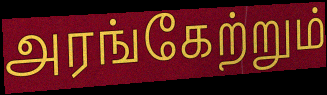
அரங்கேற்றும்